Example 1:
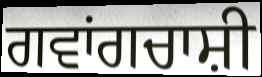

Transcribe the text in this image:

ਗਵਾਂਗਚਾਸ਼ੀ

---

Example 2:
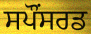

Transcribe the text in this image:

ਸਪੌਂਸਰਡ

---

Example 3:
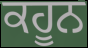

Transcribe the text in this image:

ਕਹੂਨ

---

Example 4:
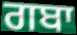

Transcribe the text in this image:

ਗਬਾ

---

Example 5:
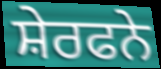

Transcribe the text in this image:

ਸ਼ੇਰਫਨੇ